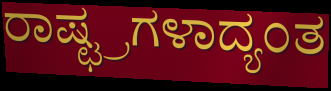
ರಾಷ್ಟ್ರಗಳಾದ್ಯಂತ